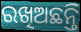
ରଖିଅଛନ୍ତି